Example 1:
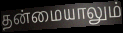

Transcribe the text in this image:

தன்மையாலும்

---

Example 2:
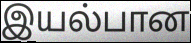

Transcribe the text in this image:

இயல்பான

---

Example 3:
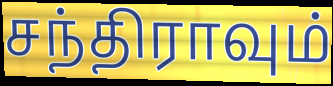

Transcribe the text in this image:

சந்திராவும்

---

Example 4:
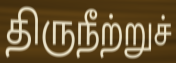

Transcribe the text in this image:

திருநீற்றுச்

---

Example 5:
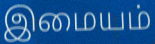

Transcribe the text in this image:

இமையம்